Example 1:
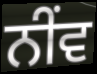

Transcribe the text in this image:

ਨੀਂਵ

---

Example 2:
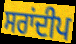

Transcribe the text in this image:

ਸਰਾਂਦੀਪ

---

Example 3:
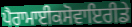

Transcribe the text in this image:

ਪੈਰਾਮਾਈਕਸੋਵਾਇਰੀਡੇ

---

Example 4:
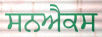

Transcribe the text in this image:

ਸਨਐਕਸ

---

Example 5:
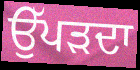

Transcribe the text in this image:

ਉੱਪੜਦਾ